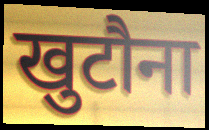
खुटौना